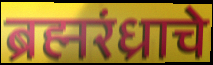
ब्रह्मरंध्राचे